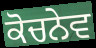
ਕੋਚਨੇਵ